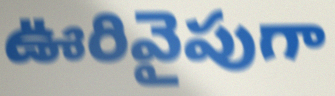
ఊరివైపుగా